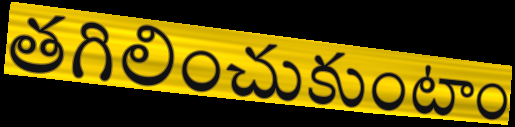
తగిలించుకుంటాం